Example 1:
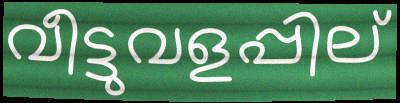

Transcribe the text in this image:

വീട്ടുവളപ്പില്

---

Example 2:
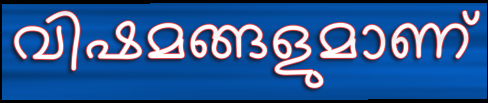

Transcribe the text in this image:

വിഷമങ്ങളുമാണ്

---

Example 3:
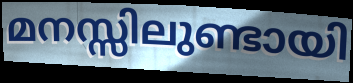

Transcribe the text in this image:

മനസ്സിലുണ്ടായി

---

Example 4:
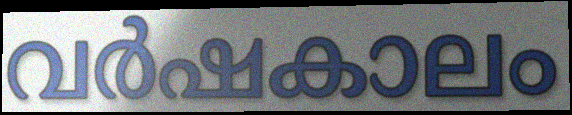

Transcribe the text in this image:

വർഷകാലം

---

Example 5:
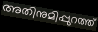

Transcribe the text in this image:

അതിനുമിപ്പുറത്ത്